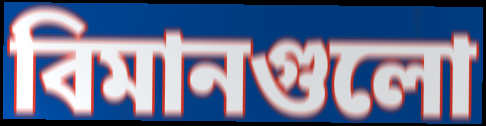
বিমানগুলো